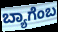
ಬ್ಯಾಗೆಂಬ